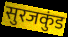
सुरजकुंड